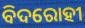
ବିଦରୋହୀ